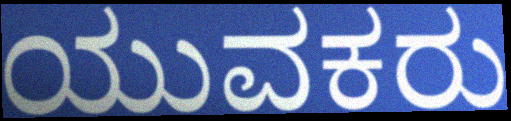
ಯುವಕರು